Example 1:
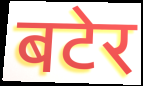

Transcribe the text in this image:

बटेर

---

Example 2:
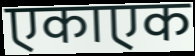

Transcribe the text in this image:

एकाएक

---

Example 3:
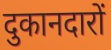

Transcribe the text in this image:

दुकानदारों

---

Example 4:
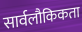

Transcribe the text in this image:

सार्वलौकिकता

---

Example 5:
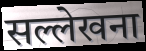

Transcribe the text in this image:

सल्लेखना